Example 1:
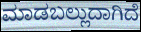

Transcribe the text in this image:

ಮಾಡಬಲ್ಲುದಾಗಿದೆ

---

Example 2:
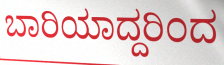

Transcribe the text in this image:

ಬಾರಿಯಾದ್ದರಿಂದ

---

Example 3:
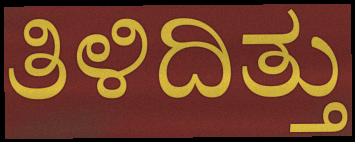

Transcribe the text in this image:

ತಿಳಿದಿತ್ತು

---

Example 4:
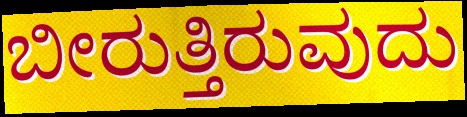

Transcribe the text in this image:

ಬೀರುತ್ತಿರುವುದು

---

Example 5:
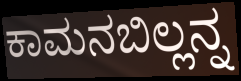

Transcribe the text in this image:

ಕಾಮನಬಿಲ್ಲನ್ನ